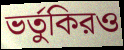
ভর্তুকিরও